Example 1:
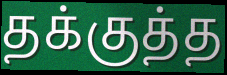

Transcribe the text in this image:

தக்குத்த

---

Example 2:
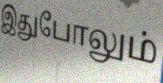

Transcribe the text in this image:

இதுபோலும்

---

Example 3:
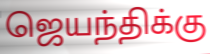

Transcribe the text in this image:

ஜெயந்திக்கு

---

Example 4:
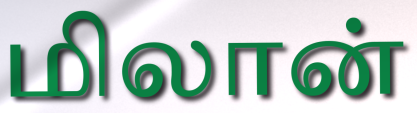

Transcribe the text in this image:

மிலான்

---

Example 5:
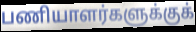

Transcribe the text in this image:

பணியாளர்களுக்குக்